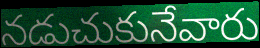
నడుచుకునేవారు